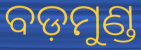
ବଡ଼ମୁଣ୍ଡ